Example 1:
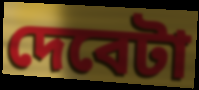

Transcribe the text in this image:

দেবেটা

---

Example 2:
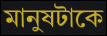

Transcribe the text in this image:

মানুষটাকে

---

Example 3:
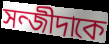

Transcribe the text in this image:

সন্জীদাকে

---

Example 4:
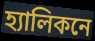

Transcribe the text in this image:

হ্যালিকনে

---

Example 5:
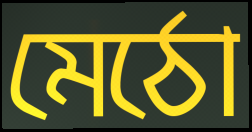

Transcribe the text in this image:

মেঠো